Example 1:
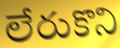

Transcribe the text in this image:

లేరుకొని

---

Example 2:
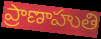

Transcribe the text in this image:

ప్రాణాహుతి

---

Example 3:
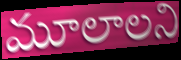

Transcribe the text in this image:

మూలాలని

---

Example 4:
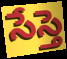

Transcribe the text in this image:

సేస్తె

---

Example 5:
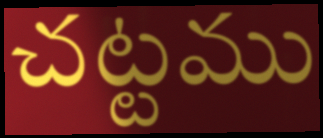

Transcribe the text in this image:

చట్టము